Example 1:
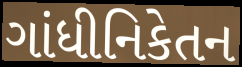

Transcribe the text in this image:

ગાંધીનિકેતન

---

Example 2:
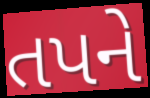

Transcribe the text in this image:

તપને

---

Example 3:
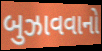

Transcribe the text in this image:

બુઝાવવાનો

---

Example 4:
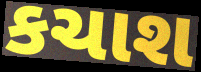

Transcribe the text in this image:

કચાશ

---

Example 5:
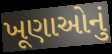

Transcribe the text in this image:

ખૂણાઓનું